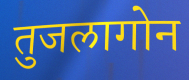
तुजलागोन